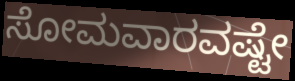
ಸೋಮವಾರವಷ್ಟೇ